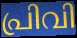
പ്രിവി